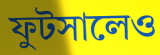
ফুটসালেও